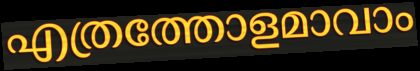
എത്രത്തോളമാവാം